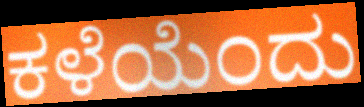
ಕಳೆಯೆಂದು